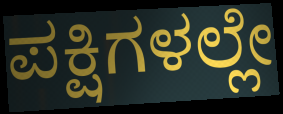
ಪಕ್ಷಿಗಳಲ್ಲೇ